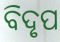
ବିଦୃପ